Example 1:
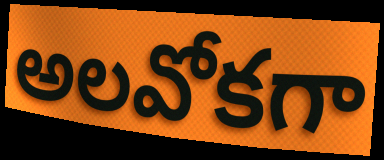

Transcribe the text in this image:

అలవోకగా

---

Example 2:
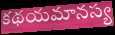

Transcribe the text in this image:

కథయమానస్య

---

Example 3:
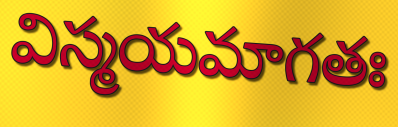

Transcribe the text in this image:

విస్మయమాగతః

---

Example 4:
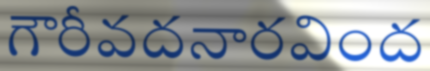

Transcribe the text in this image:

గౌరీవదనారవింద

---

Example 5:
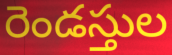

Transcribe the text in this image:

రెండస్తుల